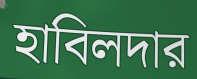
হাবিলদার